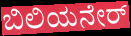
ಬಿಲಿಯನೇರ್